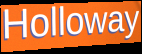
Holloway